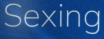
Sexing